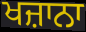
ਖਜ਼ਾਨਾ